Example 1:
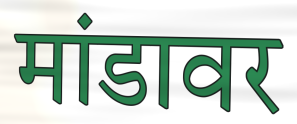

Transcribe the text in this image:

मांडावर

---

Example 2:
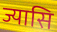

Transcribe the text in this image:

ज्यासि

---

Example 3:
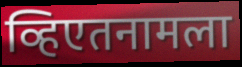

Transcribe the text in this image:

व्हिएतनामला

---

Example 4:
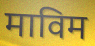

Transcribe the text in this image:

माविम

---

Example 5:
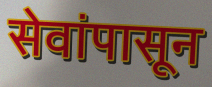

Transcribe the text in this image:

सेवांपासून